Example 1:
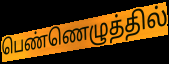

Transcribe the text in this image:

பெண்ணெழுத்தில்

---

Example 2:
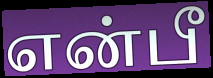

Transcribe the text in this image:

என்பீ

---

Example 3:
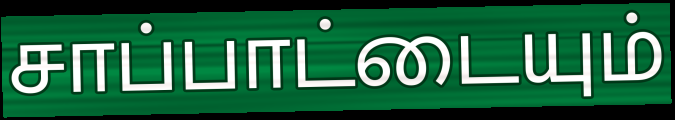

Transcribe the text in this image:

சாப்பாட்டையும்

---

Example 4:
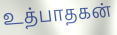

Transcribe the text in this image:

உத்பாதகன்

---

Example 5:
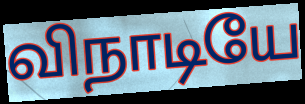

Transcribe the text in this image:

விநாடியே